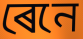
ৰেনে